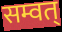
सम्वत्